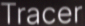
Tracer